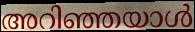
അറിഞ്ഞയാൾ